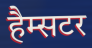
हैम्सटर